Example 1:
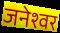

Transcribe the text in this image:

जनेश्वर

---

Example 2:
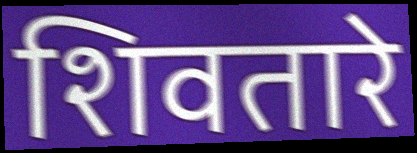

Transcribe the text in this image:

शिवतारे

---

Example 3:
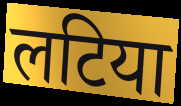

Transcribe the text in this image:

लटिया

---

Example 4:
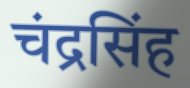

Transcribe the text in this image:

चंद्रसिंह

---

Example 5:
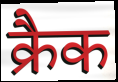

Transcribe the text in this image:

क्रैक